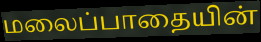
மலைப்பாதையின்